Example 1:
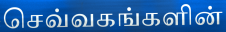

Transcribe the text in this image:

செவ்வகங்களின்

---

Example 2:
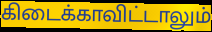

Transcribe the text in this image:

கிடைக்காவிட்டாலும்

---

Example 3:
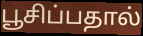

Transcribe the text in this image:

பூசிப்பதால்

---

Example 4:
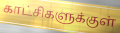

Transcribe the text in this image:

காட்சிகளுக்குள்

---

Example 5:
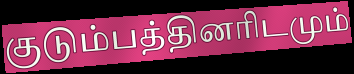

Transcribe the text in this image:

குடும்பத்தினரிடமும்